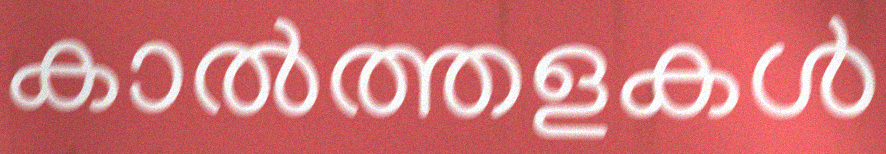
കാൽത്തളകൾ